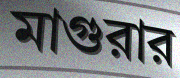
মাগুরার